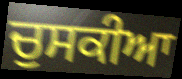
ਚੁਸਕੀਆ